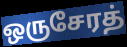
ஒருசேரத்